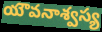
యౌవనాశ్వస్య